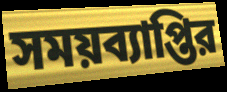
সময়ব্যাপ্তির